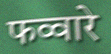
फव्‍वारे